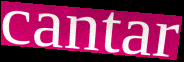
cantar